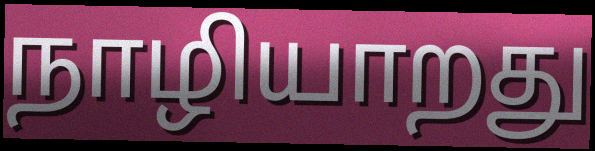
நாழியாறது